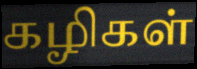
கழிகள்